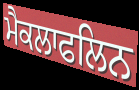
ਮੈਕਲਾਫਲਿਨ